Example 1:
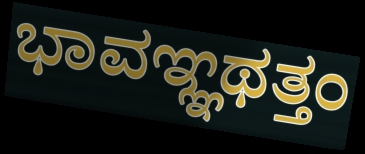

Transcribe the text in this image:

ಭಾವಞ್ಞಥತ್ತಂ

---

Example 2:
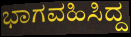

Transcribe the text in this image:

ಭಾಗವಹಿಸಿದ್ದ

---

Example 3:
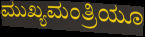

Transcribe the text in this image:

ಮುಖ್ಯಮಂತ್ರಿಯೂ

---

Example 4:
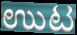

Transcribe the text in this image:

ಉುಟ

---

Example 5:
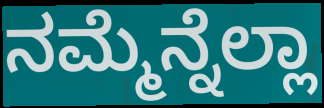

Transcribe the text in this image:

ನಮ್ಮೆನ್ನೆಲ್ಲಾ